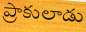
ప్రాకులాడు